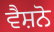
ਵੈਸ਼ਨੋ